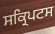
ਸਕ੍ਰਿਪਟਸ